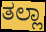
ತಲ್ಲಾ